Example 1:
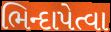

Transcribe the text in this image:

ભિન્દાપેત્વા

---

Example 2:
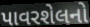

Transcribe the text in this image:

પાવરશેલનો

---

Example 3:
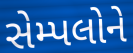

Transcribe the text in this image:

સેમ્પલોને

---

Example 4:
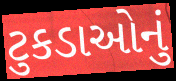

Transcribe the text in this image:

ટુકડાઓનું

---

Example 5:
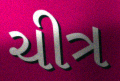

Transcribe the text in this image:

ચીત્ર